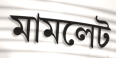
মামলেট